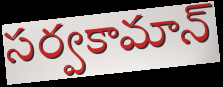
సర్వకామాన్